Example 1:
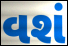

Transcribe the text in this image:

વશં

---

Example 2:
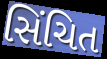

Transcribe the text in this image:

સિંચિત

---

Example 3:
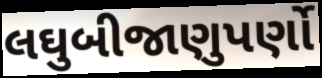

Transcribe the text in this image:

લઘુબીજાણુપર્ણો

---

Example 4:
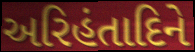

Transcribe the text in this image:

અરિહંતાદિને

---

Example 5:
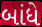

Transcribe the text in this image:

બાંધે